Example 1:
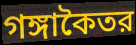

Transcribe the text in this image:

গঙ্গাকৈতর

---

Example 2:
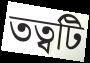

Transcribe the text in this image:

তত্বটি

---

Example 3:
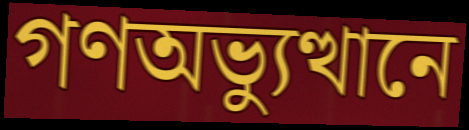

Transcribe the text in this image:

গণঅভ্যুত্থানে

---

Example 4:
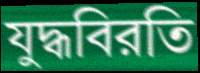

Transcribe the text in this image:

যুদ্ধবিরতি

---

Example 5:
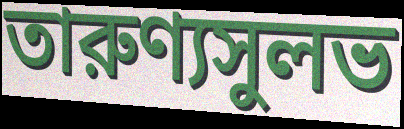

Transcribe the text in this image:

তারুণ্যসুলভ